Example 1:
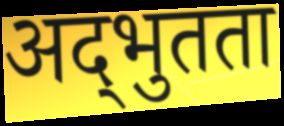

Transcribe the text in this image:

अद्‌भुतता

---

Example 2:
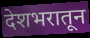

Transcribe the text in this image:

देशभरातून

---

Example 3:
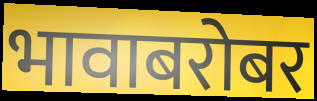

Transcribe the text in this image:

भावाबरोबर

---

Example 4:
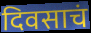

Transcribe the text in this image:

दिवसाचं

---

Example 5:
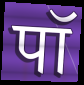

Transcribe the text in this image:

पॉ